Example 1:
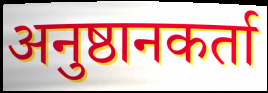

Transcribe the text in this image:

अनुष्ठानकर्ता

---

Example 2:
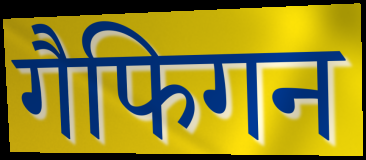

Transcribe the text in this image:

गैफिगन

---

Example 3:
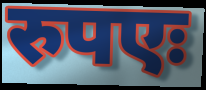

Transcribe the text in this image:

रुपएः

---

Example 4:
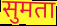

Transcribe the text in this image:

सुमता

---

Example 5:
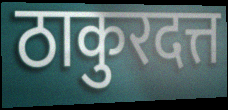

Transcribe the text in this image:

ठाकुरदत्त